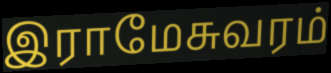
இராமேசுவரம்